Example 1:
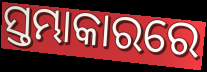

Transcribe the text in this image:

ସ୍ତମ୍ଭାକାରରେ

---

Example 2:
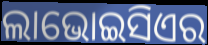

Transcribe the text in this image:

ଲାଭୋଇସିଏର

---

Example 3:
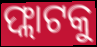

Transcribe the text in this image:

ଫ୍ଲାଟକୁ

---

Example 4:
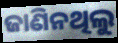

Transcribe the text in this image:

ଜାଣିନଥିଲୁ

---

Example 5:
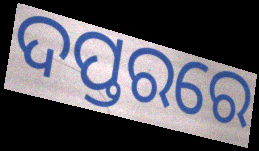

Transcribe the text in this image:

ଦପ୍ତରରେ